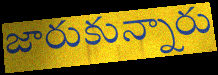
జారుకున్నారు